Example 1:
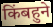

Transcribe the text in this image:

किंबहुने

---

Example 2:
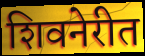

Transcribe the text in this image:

शिवनेरीत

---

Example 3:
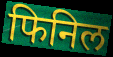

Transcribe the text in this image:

फिनिल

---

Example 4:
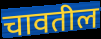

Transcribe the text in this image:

चावतील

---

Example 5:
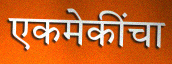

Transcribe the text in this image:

एकमेकींचा